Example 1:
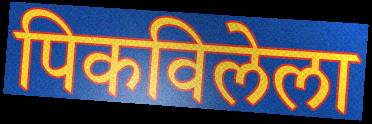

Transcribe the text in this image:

पिकविलेला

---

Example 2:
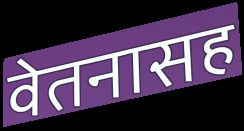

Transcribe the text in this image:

वेतनासह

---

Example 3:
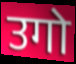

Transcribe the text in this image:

उगो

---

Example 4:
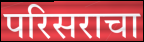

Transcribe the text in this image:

परिसराचा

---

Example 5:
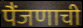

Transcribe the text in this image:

पैंजणाची